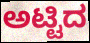
ಅಟ್ಟಿದ